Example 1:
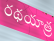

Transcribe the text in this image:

రథయాత్ర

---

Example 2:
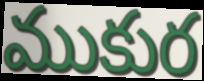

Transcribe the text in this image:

ముకుర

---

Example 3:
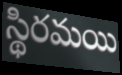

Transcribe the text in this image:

స్థిరమయి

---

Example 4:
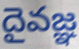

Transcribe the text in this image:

దైవజ్ఞ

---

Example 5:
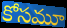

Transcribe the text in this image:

కోసమూ